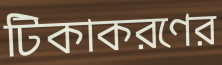
টিকাকরণের